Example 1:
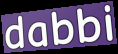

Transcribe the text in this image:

dabbi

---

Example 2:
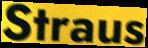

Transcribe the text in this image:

Straus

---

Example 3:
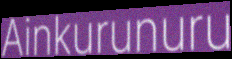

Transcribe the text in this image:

Ainkurunuru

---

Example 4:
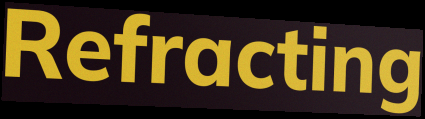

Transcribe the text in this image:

Refracting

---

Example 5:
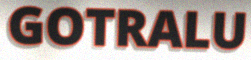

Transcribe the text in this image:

GOTRALU